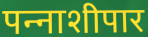
पन्नाशीपार